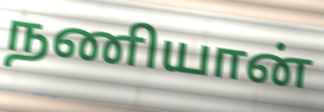
நணியான்